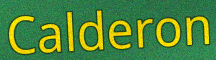
Calderon